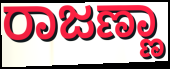
ರಾಜಣ್ಣಾ